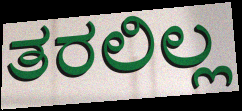
ತರಲಿಲ್ಲ